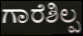
ಗಾರೆಶಿಲ್ಪ